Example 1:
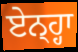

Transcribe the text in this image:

ਏਨ੍ਹ੍ਹਾ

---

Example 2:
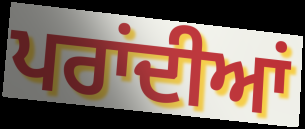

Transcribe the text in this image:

ਪਰਾਂਦੀਆਂ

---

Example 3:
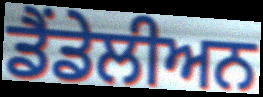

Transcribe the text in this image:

ਡੈਂਡੇਲੀਅਨ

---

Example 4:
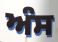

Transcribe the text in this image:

ਅੰਸ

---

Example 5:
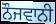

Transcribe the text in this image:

ਨੌਜਵਾਨੀ